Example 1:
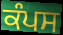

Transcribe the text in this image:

ਕੰਪਸ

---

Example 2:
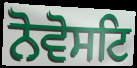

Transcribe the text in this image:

ਨੋਵੋਸਟਿ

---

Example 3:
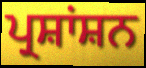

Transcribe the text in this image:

ਪ੍ਰਸ਼ਾਂਸ਼ਨ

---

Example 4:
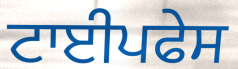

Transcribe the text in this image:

ਟਾਈਪਫੇਸ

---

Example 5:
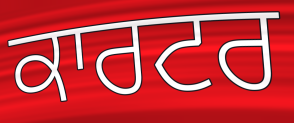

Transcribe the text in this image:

ਕਾਰਟਰ